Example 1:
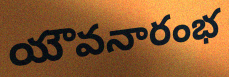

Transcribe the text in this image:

యౌవనారంభ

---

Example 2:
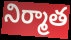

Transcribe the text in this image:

నిర్మాత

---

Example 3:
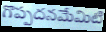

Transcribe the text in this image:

గొప్పదనమేమిటి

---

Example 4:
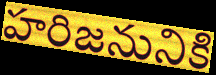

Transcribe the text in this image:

హరిజనునికి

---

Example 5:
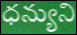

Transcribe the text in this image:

ధన్యుని